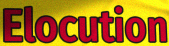
Elocution